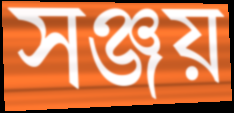
সঞ্জয়